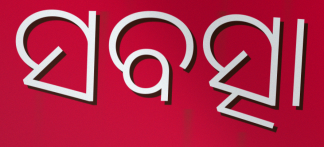
ସବତ୍ସା